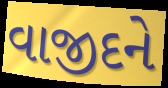
વાજીદને